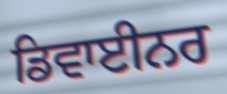
ਡਿਵਾਈਨਰ